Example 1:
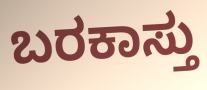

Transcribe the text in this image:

ಬರಕಾಸ್ತು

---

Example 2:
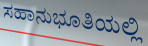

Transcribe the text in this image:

ಸಹಾನುಭೂತಿಯಲ್ಲಿ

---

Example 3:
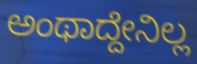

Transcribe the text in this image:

ಅಂಥಾದ್ದೇನಿಲ್ಲ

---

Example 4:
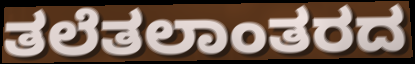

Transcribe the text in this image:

ತಲೆತಲಾಂತರದ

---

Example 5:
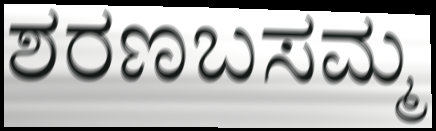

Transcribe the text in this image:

ಶರಣಬಸಮ್ಮ